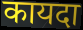
कायदा